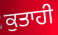
ਕੁਤਾਹੀ